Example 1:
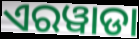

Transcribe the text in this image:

ଏରୱାଡା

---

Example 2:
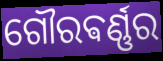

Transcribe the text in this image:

ଗୌରଵର୍ଣ୍ଣର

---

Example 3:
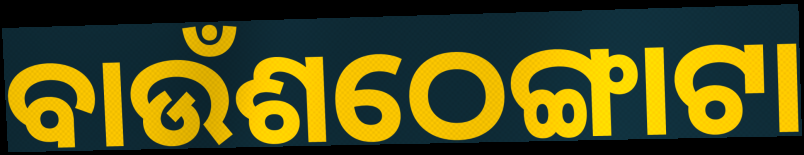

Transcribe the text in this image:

ବାଉଁଶଠେଙ୍ଗାଟା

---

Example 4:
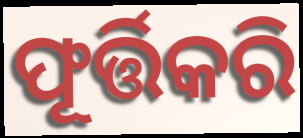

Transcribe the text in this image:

ଫୂର୍ତ୍ତିକରି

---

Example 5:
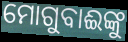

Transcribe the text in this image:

ମୋଗୁବାଈଙ୍କୁ